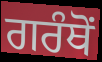
ਗਰੰਥੋਂ